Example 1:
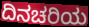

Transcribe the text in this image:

ದಿನಚರಿಯ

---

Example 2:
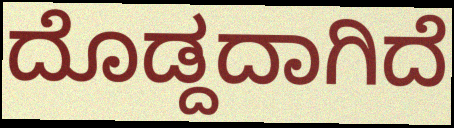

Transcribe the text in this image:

ದೊಡ್ದದಾಗಿದೆ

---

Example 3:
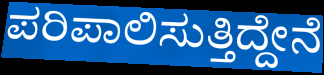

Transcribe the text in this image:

ಪರಿಪಾಲಿಸುತ್ತಿದ್ದೇನೆ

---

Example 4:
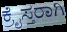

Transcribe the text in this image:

ಕ್ರೈಸ್ತರಾಗಿ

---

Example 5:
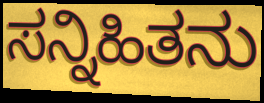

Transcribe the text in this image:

ಸನ್ನಿಹಿತನು